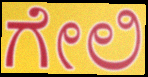
ಗೇಲಿ